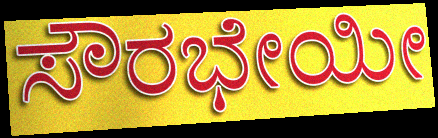
ಸೌರಭೇಯೀ